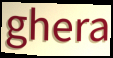
ghera